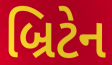
બ્રિટેન